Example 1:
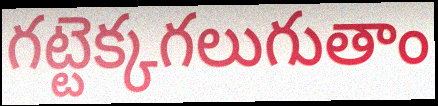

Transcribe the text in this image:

గట్టెక్కగలుగుతాం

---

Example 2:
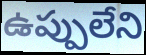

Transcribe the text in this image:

ఉప్పులేని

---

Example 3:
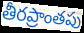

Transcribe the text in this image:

తీరప్రాంతపు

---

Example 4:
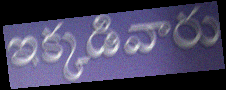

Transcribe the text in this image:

ఇక్కడివారు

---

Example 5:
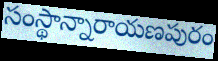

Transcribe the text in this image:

సంస్థాన్నారాయణపురం